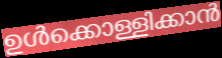
ഉൾക്കൊള്ളിക്കാൻ